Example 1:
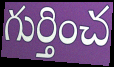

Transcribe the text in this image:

గుర్తించ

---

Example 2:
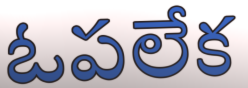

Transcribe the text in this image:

ఓపలేక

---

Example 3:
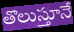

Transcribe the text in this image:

తొలుస్తూనే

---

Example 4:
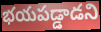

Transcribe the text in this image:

భయపడ్డాడని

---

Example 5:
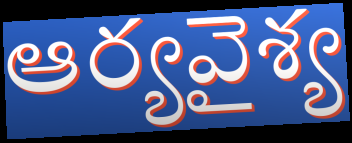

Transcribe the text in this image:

ఆర్యవైశ్య